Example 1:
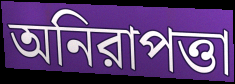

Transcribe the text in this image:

অনিরাপত্তা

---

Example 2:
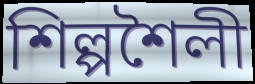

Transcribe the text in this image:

শিল্পশৈলী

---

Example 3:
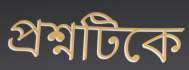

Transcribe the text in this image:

প্রশ্নটিকে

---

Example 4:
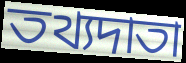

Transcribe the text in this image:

তথ্যদাতা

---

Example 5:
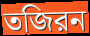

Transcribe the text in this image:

তজিরন